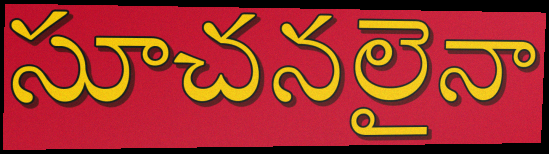
సూచనలైనా